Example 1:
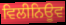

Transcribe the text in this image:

ਵਿਲੀਨਿਊਵ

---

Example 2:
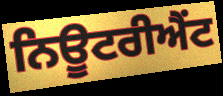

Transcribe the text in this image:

ਨਿਊਟਰੀਐਂਟ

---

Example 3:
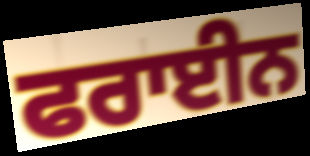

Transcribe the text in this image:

ਫਰਾਈਨ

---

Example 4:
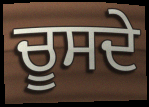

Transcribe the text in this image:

ਚੂਸਦੇ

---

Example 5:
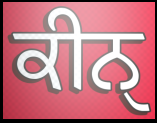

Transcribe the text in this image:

ਕੀਨੑ